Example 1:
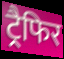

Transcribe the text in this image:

ट्रैफिर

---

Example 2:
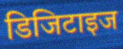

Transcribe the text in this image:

डिजिटाइज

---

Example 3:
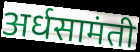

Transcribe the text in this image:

अर्धसामंती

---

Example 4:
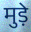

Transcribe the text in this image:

मुड़े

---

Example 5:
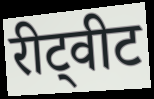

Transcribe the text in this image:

रीट्वीट